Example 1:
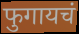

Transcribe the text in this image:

फुगायचं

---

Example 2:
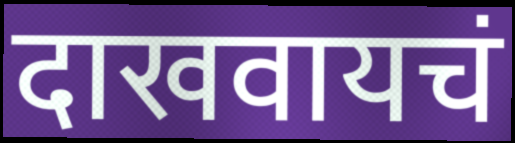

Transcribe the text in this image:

दाखवायचं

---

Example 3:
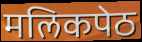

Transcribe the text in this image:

मलिकपेठ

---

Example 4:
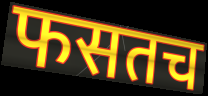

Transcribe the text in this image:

फसतच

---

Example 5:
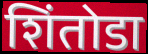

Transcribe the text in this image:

शिंतोडा